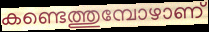
കണ്ടെത്തുമ്പോഴാണ്